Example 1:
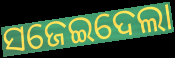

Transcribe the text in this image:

ସଜେଇଦେଲା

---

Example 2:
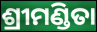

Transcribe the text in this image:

ଶ୍ରୀମଣ୍ଡିତା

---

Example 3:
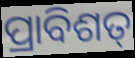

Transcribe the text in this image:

ପ୍ରାବିଶତ୍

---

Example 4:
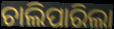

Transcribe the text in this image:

ଚାଲିପାରିଲା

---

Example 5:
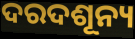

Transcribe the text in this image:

ଦରଦଶୂନ୍ୟ